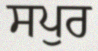
ਸਪੁਰ